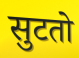
सुटतो